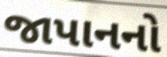
જાપાનનો